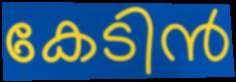
കേടിൻ